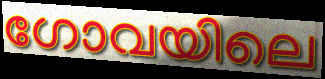
ഗോവയിലെ